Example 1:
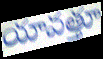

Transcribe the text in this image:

యావత్తూ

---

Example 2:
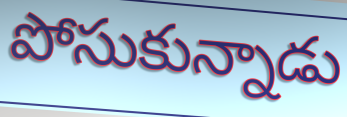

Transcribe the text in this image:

పోసుకున్నాడు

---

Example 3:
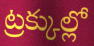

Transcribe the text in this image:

ట్రక్కుల్లో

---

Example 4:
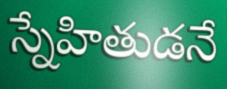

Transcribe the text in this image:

స్నేహితుడనే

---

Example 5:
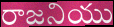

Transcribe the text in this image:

రాజనియు